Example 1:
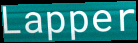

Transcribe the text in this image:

Lapper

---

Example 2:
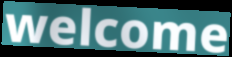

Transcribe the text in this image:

welcome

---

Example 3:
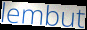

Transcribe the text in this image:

lembut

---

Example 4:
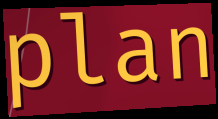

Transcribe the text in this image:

plan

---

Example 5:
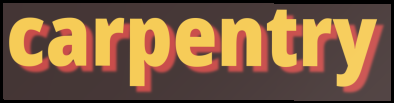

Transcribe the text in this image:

carpentry